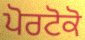
ਪੋਰਟੋਕੋ